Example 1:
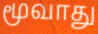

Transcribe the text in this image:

மூவாது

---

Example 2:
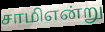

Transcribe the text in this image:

சாமிஎன்று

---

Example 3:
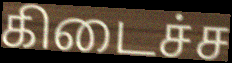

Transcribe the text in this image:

கிடைச்ச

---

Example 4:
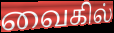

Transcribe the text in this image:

வைகில்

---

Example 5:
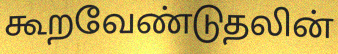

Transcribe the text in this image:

கூறவேண்டுதலின்